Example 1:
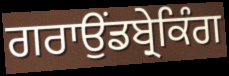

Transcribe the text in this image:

ਗਰਾਉਂਡਬ੍ਰੇਕਿੰਗ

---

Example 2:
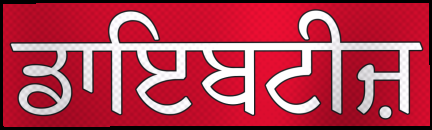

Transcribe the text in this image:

ਡਾਇਬਟੀਜ਼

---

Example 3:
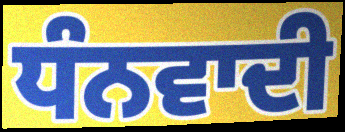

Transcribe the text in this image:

ਧੰਨਵਾਦੀ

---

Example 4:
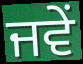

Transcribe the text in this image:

ਜਵੇਂ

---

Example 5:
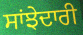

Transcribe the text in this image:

ਸਾਂਝੇਦਾਰੀ